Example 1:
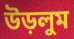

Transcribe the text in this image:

উড়লুম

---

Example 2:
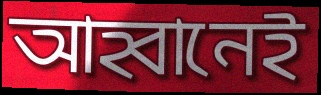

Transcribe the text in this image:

আহ্বানেই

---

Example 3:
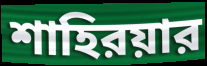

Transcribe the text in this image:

শাহিরয়ার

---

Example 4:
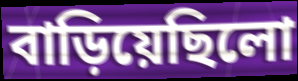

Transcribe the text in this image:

বাড়িয়েছিলো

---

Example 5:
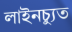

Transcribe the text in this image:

লাইনচ্যুত